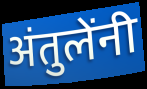
अंतुलेंनी